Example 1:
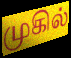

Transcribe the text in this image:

முகில்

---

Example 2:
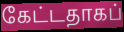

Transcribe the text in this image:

கேட்டதாகப்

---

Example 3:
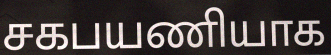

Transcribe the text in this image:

சகபயணியாக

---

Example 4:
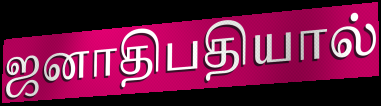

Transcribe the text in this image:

ஜனாதிபதியால்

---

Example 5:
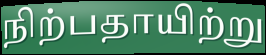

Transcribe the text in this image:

நிற்பதாயிற்று